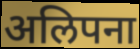
अलिपना